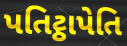
પતિટ્ઠાપેતિ